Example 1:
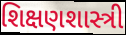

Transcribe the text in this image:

શિક્ષણશાસ્ત્રી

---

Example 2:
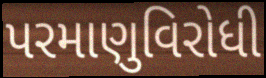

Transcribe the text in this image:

પરમાણુવિરોધી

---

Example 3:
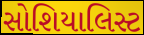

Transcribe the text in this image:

સોશિયાલિસ્ટ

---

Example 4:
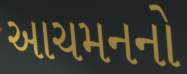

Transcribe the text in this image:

આચમનનો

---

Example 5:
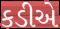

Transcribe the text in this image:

કડીએ